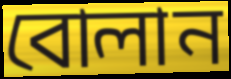
বোলান